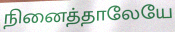
நினைத்தாலேயே